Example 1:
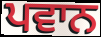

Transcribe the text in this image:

ਪਵਾਨ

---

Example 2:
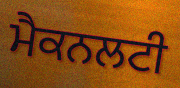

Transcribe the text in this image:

ਮੈਕਨਲਟੀ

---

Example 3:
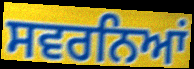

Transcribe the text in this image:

ਸਵਰਨਿਆਂ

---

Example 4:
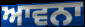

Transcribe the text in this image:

ਆਵਨਾ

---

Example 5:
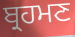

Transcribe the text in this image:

ਬ੍ਰਹਮਣ